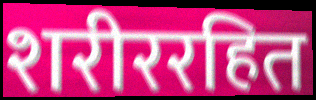
शरीररहित